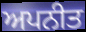
ਅਪਨੀਤ